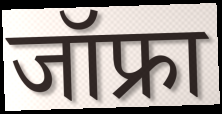
जॉफ्रा